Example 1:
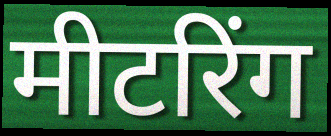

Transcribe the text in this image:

मीटरिंग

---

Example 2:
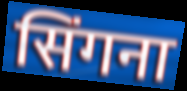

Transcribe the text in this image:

सिंगना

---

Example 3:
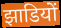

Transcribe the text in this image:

झाडियों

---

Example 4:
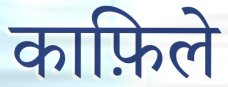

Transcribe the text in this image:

काफ़िले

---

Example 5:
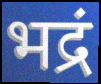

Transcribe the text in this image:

भद्रं